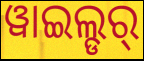
ୱାଇଲ୍ଡର୍